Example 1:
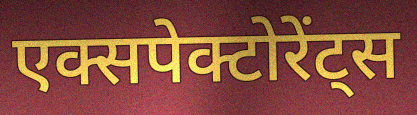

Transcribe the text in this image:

एक्सपेक्टोरेंट्स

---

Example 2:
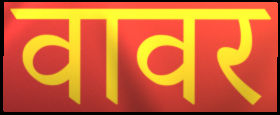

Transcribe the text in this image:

वावर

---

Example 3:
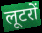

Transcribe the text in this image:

लूटरों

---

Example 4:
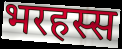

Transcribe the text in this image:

भरहस्स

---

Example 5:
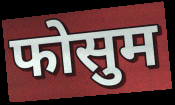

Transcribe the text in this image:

फोसुम